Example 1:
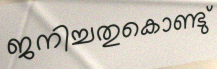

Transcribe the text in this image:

ജനിച്ചതുകൊണ്ടു്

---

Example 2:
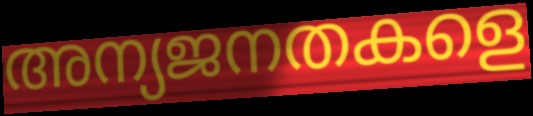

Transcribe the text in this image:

അന്യജനതകളെ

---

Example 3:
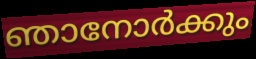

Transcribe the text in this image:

ഞാനോർക്കും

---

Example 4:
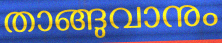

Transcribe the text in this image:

താങ്ങുവാനും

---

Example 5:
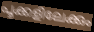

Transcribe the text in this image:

പൂക്കളിലേക്കും